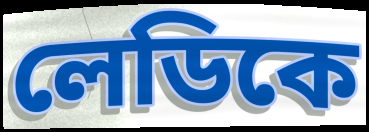
লেডিকে